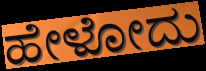
ಹೇಳೋದು